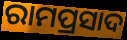
ରାମପ୍ରସାଦ